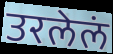
उरलेलं